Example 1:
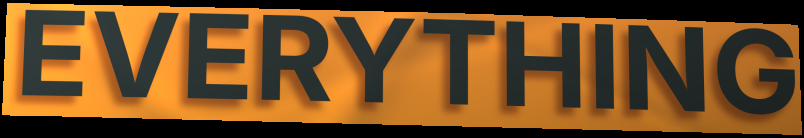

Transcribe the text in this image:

EVERYTHING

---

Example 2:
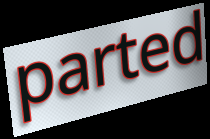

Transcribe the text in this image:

parted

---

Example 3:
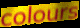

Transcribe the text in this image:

colours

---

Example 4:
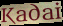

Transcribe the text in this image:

Kadai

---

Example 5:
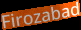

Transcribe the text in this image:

Firozabad